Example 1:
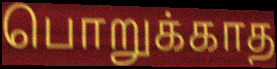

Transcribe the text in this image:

பொறுக்காத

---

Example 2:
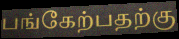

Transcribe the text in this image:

பங்கேற்பதற்கு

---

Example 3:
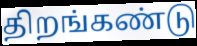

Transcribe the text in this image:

திறங்கண்டு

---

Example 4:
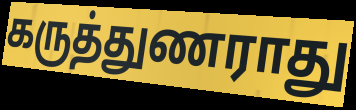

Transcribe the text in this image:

கருத்துணராது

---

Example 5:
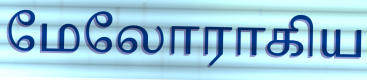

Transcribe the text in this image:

மேலோராகிய